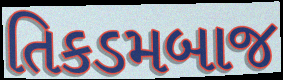
તિકડમબાજ